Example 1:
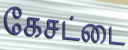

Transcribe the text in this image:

கேசட்டை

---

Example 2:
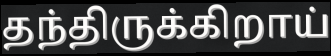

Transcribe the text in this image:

தந்திருக்கிறாய்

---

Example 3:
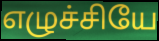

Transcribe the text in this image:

எழுச்சியே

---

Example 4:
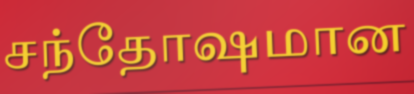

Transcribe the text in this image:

சந்தோஷமான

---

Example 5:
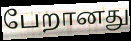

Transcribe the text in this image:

பேறானது